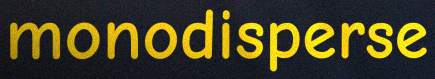
monodisperse